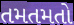
તમતમતો